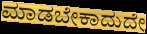
ಮಾಡಬೇಕಾದುದೇ